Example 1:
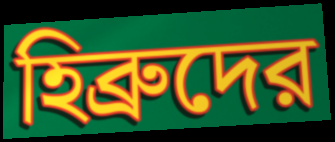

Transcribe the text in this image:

হিব্রুদের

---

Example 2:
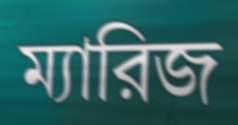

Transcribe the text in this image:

ম্যারিজ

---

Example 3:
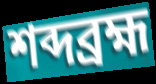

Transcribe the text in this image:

শব্দব্রহ্ম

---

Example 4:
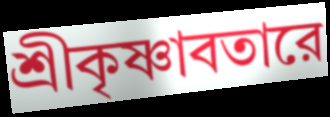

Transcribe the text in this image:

শ্রীকৃষ্ণাবতারে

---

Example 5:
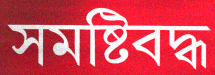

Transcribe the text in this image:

সমষ্টিবদ্ধ